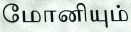
மோனியும்